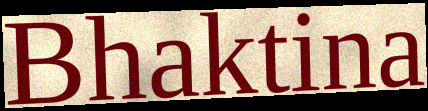
Bhaktina